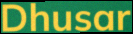
Dhusar